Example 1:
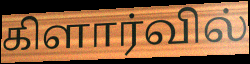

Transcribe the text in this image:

கிளார்வில்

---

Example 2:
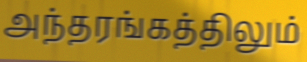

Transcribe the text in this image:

அந்தரங்கத்திலும்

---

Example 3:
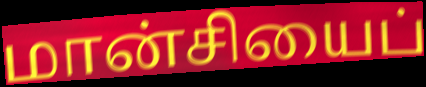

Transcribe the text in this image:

மான்சியைப்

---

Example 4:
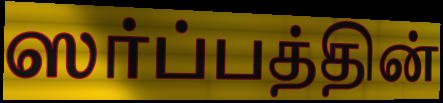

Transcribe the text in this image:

ஸர்ப்பத்தின்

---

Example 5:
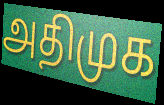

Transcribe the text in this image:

அதிமுக